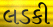
લડકી